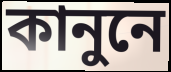
কানুনে